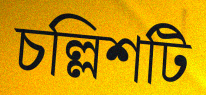
চল্লিশটি